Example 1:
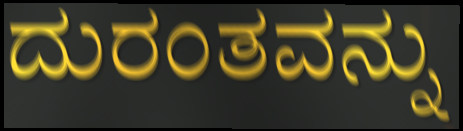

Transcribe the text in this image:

ದುರಂತವನ್ನು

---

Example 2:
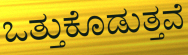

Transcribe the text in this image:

ಒತ್ತುಕೊಡುತ್ತವೆ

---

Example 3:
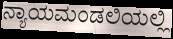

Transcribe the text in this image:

ನ್ಯಾಯಮಂಡಲಿಯಲ್ಲಿ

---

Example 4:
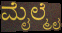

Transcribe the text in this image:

ಮೈಲ್ಮೈ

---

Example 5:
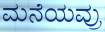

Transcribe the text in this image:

ಮನೆಯವ್ರು